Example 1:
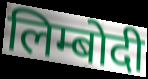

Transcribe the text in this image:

लिम्बोदी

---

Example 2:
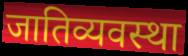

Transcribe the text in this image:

जातिव्यवस्था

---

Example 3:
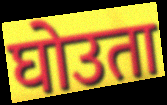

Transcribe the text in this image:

घोउता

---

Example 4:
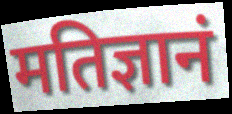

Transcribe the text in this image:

मतिज्ञानं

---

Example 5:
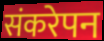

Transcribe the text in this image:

संकरेपन